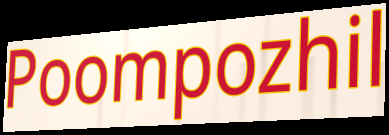
Poompozhil